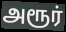
அரூர்